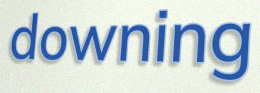
downing